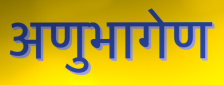
अणुभागेण